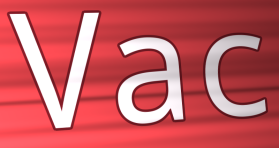
Vac